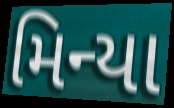
મિન્યા